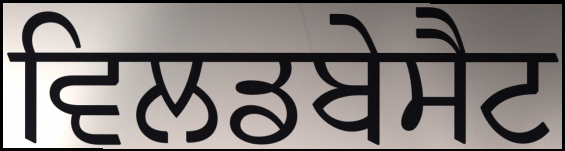
ਵਿਲਡਬੇਸੈਟ